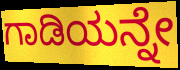
ಗಾಡಿಯನ್ನೇ